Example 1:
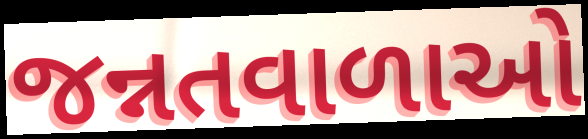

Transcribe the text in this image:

જન્નતવાળાઓ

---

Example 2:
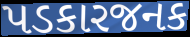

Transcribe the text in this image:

પડકારજનક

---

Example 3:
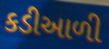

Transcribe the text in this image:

કડીઆળી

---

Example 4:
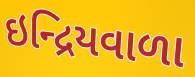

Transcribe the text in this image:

ઇન્દ્રિયવાળા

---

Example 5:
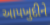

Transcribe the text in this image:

આપખુદીને